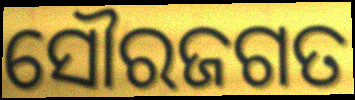
ସୌରଜଗତ